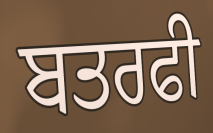
ਬਤਰਫੀ